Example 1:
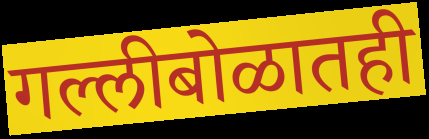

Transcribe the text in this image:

गल्लीबोळातही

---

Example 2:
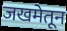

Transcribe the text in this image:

जखमेतून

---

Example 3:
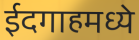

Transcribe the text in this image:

ईदगाहमध्ये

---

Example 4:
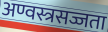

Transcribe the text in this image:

अण्वस्त्रसज्जता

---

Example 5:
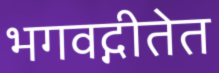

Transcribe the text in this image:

भगवद्गीतेत